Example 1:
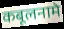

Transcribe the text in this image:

कबूलनामे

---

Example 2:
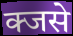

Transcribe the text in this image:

क्जसे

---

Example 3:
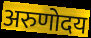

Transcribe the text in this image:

अरुणोदय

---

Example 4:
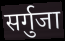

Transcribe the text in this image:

सर्गुजा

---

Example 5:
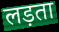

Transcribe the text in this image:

लड़ता